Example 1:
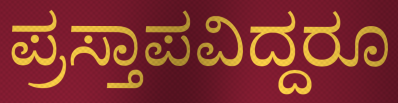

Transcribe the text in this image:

ಪ್ರಸ್ತಾಪವಿದ್ದರೂ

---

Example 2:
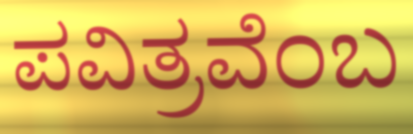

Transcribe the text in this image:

ಪವಿತ್ರವೆಂಬ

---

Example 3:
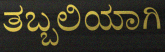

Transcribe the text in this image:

ತಬ್ಬಲಿಯಾಗಿ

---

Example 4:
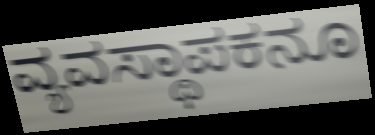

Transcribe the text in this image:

ವ್ಯವಸ್ಥಾಪಕನೂ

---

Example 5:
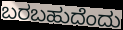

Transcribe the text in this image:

ಬರಬಹುದೆಂದು